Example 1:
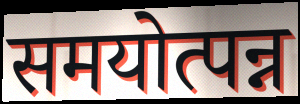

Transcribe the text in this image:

समयोत्पन्न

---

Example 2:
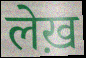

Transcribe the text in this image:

लेख़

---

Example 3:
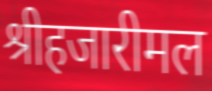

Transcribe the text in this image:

श्रीहजारीमल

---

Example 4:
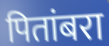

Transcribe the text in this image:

पितांबरा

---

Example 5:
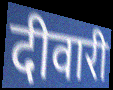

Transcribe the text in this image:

दीवारी